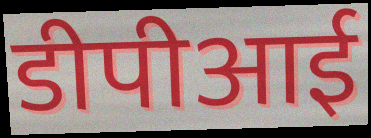
डीपीआई